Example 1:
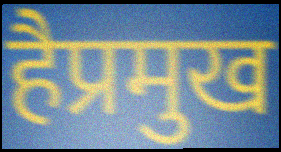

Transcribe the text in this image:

हैप्रमुख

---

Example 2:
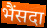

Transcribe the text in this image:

भैंसदा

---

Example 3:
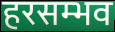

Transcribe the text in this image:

हरसम्भव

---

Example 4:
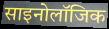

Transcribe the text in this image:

साइनोलॉजिक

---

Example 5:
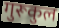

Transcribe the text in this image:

गुरूकुल